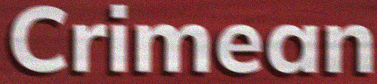
Crimean